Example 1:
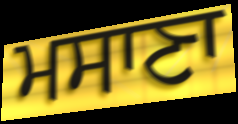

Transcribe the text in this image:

ਮਸਾਣਾ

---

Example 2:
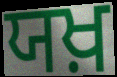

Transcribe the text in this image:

ਯਖ਼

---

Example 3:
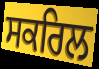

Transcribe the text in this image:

ਸਕਰਿਲ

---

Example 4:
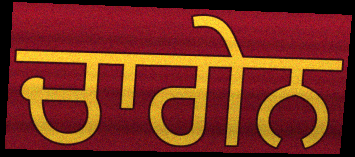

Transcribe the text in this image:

ਚਾਗੇਨ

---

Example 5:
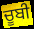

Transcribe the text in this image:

ਚੂਬੀ